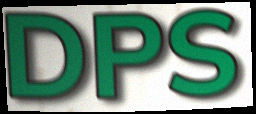
DPS